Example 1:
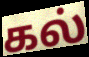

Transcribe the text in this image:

கல்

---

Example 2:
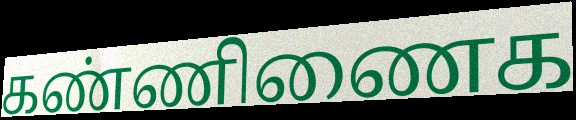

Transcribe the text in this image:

கண்ணிணைக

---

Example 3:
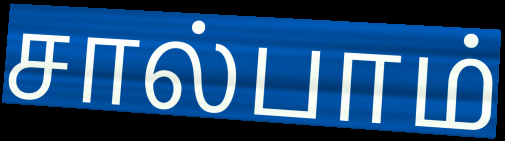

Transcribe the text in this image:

சால்பாம்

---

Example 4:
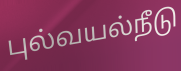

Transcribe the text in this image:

புல்வயல்நீடு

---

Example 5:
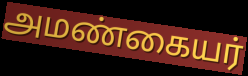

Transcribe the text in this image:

அமண்கையர்